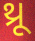
થ્રૂ